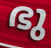
ഭു